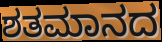
ಶತಮಾನದ